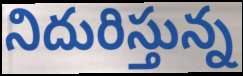
నిదురిస్తున్న